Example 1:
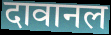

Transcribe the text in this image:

दावानल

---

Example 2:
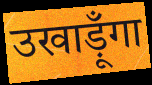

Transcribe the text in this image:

उखाड़ूँगा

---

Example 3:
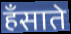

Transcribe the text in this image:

हँसाते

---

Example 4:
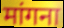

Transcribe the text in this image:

मांगना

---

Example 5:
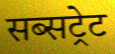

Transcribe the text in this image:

सब्सट्रेट